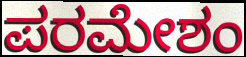
ಪರಮೇಶಂ